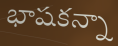
భాషకన్నా